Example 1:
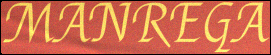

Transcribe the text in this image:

MANREGA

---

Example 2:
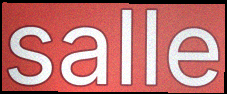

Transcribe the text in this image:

salle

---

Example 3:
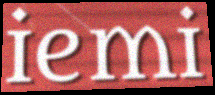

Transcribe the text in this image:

iemi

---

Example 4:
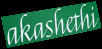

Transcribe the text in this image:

akashethi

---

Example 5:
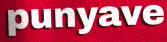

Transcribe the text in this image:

punyave